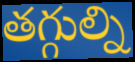
తగ్గుల్ని